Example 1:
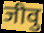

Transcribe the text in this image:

जीवु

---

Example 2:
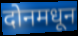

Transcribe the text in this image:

दोनमधून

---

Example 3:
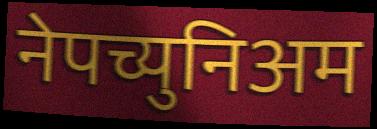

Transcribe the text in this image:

नेपच्युनिअम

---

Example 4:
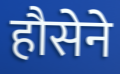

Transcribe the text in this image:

हौसेने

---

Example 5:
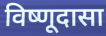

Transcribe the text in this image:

विष्णूदासा